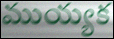
ముయ్యక